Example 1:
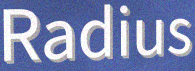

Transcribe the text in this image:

Radius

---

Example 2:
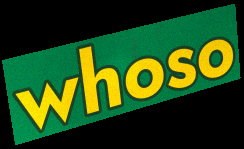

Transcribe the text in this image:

whoso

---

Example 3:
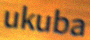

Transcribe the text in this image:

ukuba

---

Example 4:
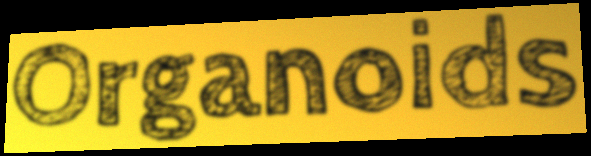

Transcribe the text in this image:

Organoids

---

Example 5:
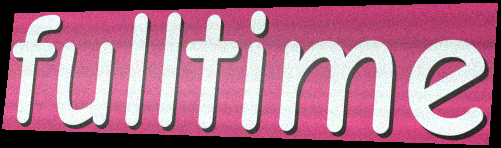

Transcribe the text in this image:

fulltime